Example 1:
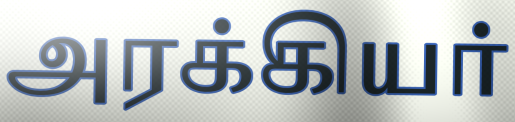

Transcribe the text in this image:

அரக்கியர்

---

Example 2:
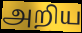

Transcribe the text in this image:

அறிய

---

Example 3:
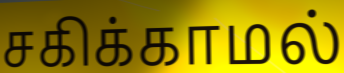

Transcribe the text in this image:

சகிக்காமல்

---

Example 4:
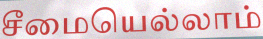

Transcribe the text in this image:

சீமையெல்லாம்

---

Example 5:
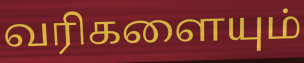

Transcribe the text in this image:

வரிகளையும்